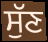
ਸੁੱਣ